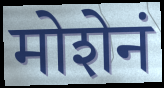
मोशेनं